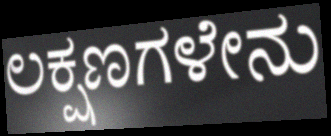
ಲಕ್ಷಣಗಳೇನು